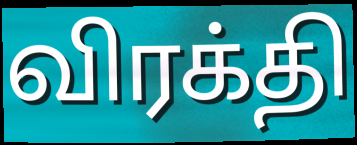
விரக்தி